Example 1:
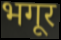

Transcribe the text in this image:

भगूर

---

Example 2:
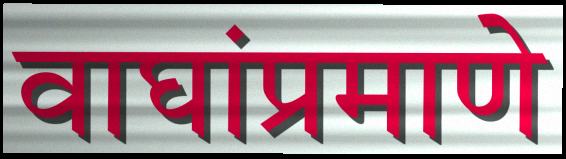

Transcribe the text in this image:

वाघांप्रमाणे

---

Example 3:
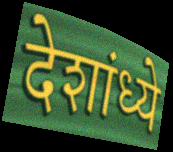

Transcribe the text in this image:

देशांध्ये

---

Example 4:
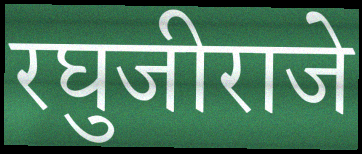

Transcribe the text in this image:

रघुजीराजे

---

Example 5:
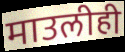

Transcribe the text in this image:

माउलीही